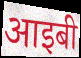
आइबी